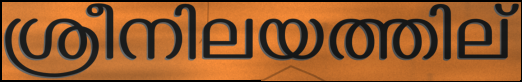
ശ്രീനിലയത്തില്